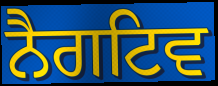
ਨੈਗਟਿਵ